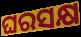
ଘରସକ୍ଷ